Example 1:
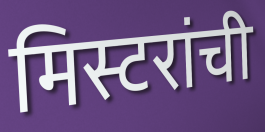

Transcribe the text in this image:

मिस्टरांची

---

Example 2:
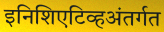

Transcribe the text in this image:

इनिशिएटिव्हअंतर्गत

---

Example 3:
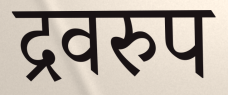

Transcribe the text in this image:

द्रवरुप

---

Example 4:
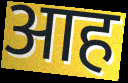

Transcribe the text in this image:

आह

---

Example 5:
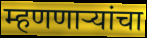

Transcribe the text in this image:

म्हणणाऱ्यांचा